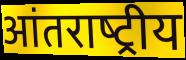
आंतराष्ट्रीय